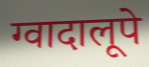
ग्वादालूपे